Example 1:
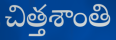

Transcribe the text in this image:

చిత్తశాంతి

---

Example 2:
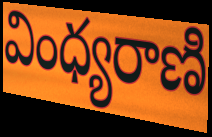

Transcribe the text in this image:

వింధ్యరాణి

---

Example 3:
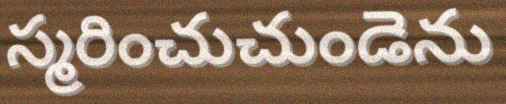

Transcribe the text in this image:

స్మరించుచుండెను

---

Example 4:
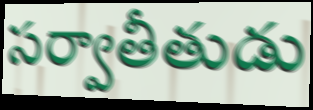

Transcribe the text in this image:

సర్వాతీతుడు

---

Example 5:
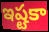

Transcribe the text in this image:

ఇష్టకా